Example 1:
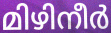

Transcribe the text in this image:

മിഴിനീർ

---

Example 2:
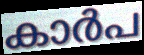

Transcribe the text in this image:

കാർപ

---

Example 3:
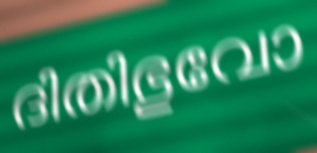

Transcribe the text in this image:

ദിതിഭുവോ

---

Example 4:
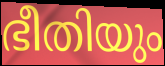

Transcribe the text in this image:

ഭീതിയും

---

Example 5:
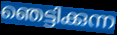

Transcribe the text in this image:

ഞെട്ടിക്കുന്ന